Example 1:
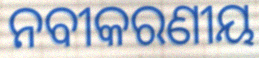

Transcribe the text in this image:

ନବୀକରଣୀୟ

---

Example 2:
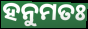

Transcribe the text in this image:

ହନୁମତଃ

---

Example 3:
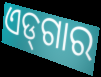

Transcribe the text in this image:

ଏଡ୍‌ଗାର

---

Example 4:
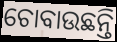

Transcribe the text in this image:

ଚୋବାଉଛନ୍ତି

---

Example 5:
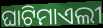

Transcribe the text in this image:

ଘାଟିମାଏଲୀ